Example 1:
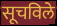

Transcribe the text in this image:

सूचविले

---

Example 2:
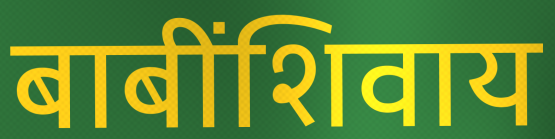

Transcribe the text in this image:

बाबींशिवाय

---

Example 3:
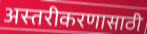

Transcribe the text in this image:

अस्तरीकरणासाठी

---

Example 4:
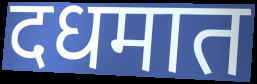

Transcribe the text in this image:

दधमात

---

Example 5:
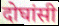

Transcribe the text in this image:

दोघांसी